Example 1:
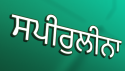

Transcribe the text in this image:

ਸਪੀਰੁਲੀਨਾ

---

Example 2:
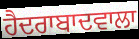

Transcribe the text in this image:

ਹੈਦਰਾਬਾਦਵਾਲਾ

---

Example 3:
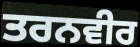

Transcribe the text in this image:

ਤਰਨਵੀਰ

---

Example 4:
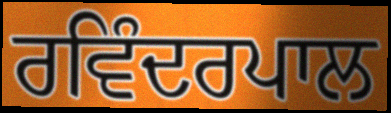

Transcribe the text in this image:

ਰਵਿੰਦਰਪਾਲ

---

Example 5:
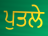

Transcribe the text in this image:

ਪੁਤਲੇ